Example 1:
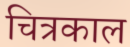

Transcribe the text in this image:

चित्रकाल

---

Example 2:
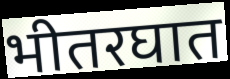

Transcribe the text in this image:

भीतरघात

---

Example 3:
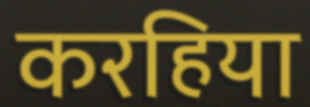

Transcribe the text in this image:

करहिया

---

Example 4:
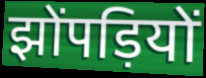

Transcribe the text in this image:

झोंपड़ियों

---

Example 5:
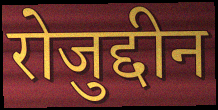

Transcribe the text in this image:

रोजुद्दीन